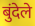
बुंदेले